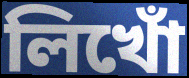
লিখোঁ